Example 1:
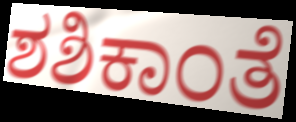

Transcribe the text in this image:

ಶಶಿಕಾಂತೆ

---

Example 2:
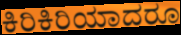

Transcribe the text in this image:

ಕಿರಿಕಿರಿಯಾದರೂ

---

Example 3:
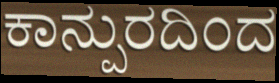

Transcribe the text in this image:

ಕಾನ್ಪುರದಿಂದ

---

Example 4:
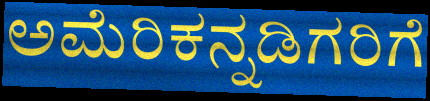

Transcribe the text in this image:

ಅಮೆರಿಕನ್ನಡಿಗರಿಗೆ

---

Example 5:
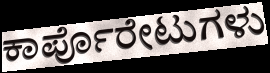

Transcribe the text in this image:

ಕಾರ್ಪೊರೇಟುಗಳು